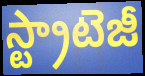
స్ట్రాటెజీ